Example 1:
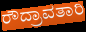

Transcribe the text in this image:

ರೌದ್ರಾವತಾರಿ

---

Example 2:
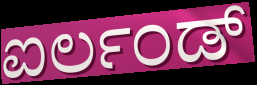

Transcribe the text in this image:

ಐರ್ಲಂಡ್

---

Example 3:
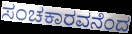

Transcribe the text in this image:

ಸಂಚಕಾರವನೆಂದ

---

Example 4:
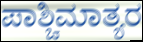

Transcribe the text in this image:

ಪಾಶ್ಚಿಮಾತ್ಯರ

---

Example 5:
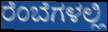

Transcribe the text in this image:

ರೆಂಬೆಗಳಲ್ಲಿ